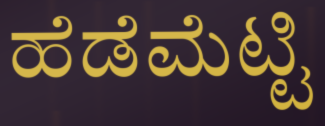
ಹೆಡೆಮೆಟ್ಟಿ